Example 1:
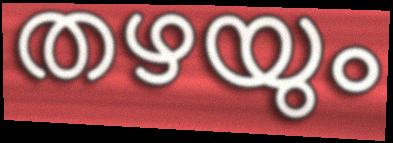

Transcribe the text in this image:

തഴയും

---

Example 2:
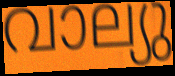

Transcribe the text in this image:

വാല്യു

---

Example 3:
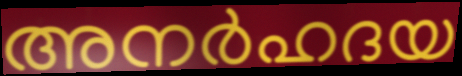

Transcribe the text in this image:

അനർഹദയ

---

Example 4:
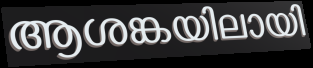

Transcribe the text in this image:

ആശങ്കയിലായി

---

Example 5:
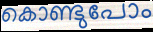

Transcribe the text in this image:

കൊണ്ടുപോം